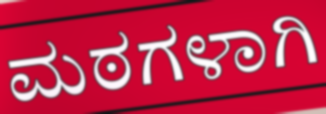
ಮಠಗಳಾಗಿ